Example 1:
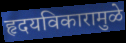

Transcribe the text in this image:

हृदयविकारामुळे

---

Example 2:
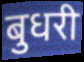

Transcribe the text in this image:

बुधरी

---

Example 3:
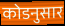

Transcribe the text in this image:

कोडनुसार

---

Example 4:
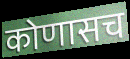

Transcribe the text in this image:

कोणासच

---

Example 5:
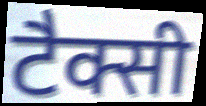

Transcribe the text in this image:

टैक्सी